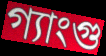
গ্যাংগু